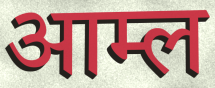
आम्ल